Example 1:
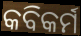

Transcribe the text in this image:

କବିକର୍ମ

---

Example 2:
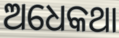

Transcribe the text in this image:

ଅଧେକଥା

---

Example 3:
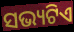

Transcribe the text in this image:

ସଭ୍ୟଟିଏ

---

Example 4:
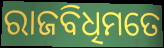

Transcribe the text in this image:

ରାଜବିଧିମତେ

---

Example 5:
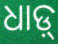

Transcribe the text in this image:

ଧାଡ଼୍